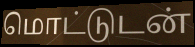
மொட்டுடன்